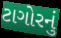
ટાગોરનું